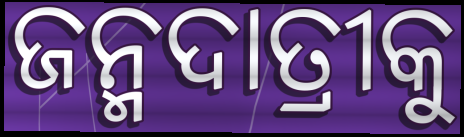
ଜନ୍ମଦାତ୍ରୀକୁ